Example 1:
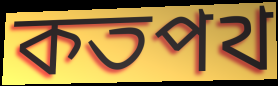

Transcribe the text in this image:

কতপথ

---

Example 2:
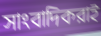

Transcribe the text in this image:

সাংবাদিকরাই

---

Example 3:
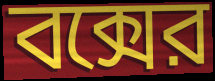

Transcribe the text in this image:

বক্সের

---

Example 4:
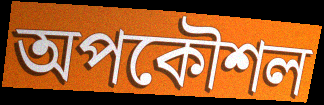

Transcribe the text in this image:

অপকৌশল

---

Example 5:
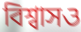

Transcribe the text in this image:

বিশ্বাসও